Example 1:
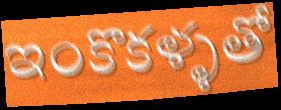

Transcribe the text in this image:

ఇంకొకళ్ళతో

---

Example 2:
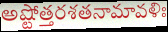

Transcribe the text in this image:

అష్టోత్తరశతనామావళిః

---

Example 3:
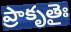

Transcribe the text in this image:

ప్రాకృతైః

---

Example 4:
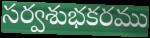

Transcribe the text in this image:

సర్వశుభకరము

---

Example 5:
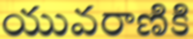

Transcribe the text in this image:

యువరాణికి